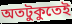
অতটুকুতেই